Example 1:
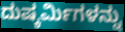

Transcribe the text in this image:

ದುಷ್ಕರ್ಮಿಗಳನ್ನು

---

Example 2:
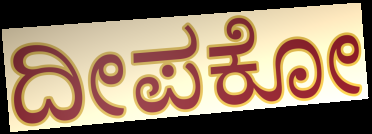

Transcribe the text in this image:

ದೀಪಕೋ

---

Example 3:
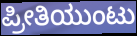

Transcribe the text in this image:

ಪ್ರೀತಿಯುಂಟು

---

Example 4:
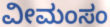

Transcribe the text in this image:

ವೀಮಂಸಂ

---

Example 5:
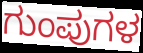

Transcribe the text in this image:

ಗುಂಪುಗಳ